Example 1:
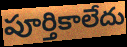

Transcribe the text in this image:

పూర్తికాలేదు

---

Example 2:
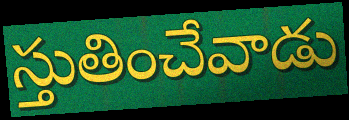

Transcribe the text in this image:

స్తుతించేవాడు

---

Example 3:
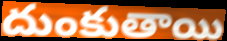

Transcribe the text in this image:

దుంకుతాయి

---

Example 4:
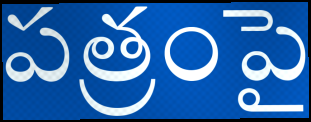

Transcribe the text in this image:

పత్రంపై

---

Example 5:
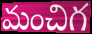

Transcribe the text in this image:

మంచిగ